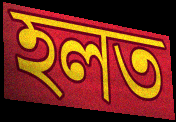
হলত